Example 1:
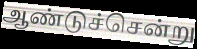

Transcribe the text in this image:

ஆண்டுச்சென்று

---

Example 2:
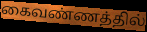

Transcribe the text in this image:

கைவண்ணத்தில்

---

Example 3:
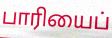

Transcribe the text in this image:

பாரியைப்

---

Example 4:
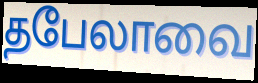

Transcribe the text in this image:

தபேலாவை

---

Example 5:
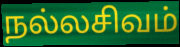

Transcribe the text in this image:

நல்லசிவம்